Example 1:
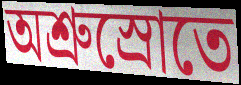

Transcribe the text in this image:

অশ্রুস্রোতে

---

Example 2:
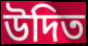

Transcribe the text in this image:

উদিত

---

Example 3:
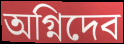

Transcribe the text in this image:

অগ্নিদেব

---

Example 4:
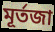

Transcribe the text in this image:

মূর্তজা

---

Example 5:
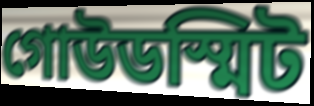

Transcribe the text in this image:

গোউডস্মিট